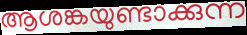
ആശങ്കയുണ്ടാക്കുന്ന